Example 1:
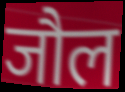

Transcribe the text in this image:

जौल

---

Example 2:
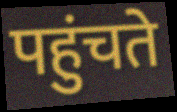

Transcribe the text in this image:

पहुंचते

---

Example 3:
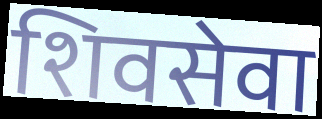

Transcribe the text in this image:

शिवसेवा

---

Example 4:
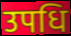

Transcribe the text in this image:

उपधि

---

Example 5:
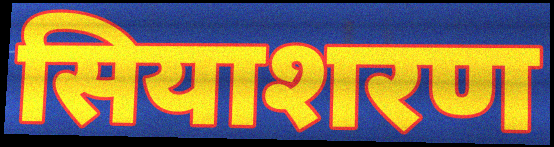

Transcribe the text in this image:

सियाशरण